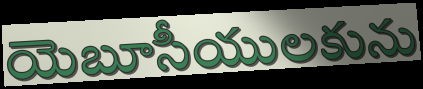
యెబూసీయులకును